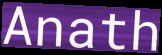
Anath